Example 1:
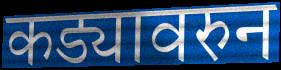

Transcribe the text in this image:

कड्यावरुन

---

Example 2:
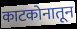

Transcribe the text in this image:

काटकोनातून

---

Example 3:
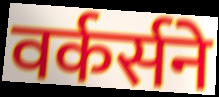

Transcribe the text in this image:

वर्कर्सने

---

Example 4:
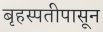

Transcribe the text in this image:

बृहस्पतीपासून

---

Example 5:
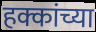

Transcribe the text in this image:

हक्कांच्या